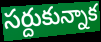
సర్దుకున్నాక